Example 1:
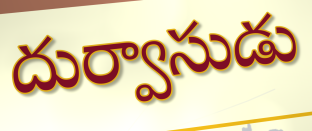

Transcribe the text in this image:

దుర్వాసుడు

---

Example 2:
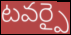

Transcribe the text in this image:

టవర్పై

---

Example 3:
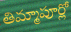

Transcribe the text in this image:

తిమ్మాపూర్లో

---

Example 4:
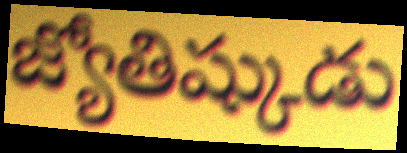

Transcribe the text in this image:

జ్యోతిష్కుడు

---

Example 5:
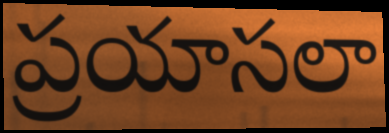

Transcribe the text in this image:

ప్రయాసలా